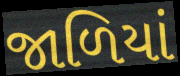
જાળિયાં